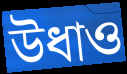
উধাও